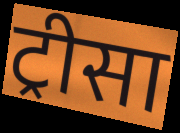
ट्रीसा